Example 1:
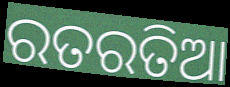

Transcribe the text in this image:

ରତରତିଆ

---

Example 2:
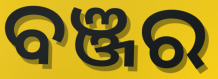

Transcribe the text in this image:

ବଞ୍ଜର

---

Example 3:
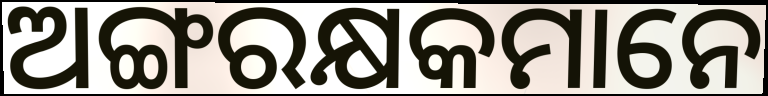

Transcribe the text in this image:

ଅଙ୍ଗରକ୍ଷକମାନେ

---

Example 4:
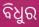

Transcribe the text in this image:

ବିଧୁର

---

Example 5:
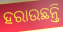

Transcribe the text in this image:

ହରାଉଛନ୍ତି